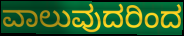
ವಾಲುವುದರಿಂದ